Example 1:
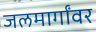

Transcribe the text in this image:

जलमार्गांवर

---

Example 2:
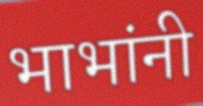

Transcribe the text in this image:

भाभांनी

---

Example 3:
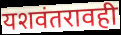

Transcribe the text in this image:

यशवंतरावही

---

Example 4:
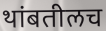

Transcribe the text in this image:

थांबतीलच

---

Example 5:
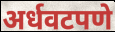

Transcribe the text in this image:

अर्धवटपणे